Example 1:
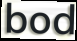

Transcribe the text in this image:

bod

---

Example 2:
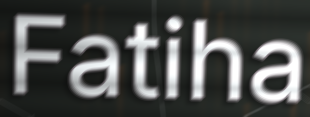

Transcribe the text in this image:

Fatiha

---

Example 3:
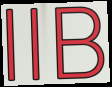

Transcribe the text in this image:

IIB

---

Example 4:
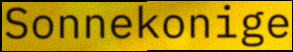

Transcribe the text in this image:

Sonnekonige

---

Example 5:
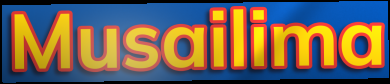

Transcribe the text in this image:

Musailima